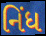
નિંધ